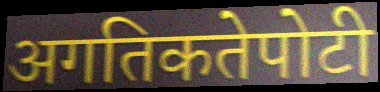
अगतिकतेपोटी